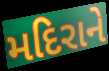
મદિરાને